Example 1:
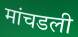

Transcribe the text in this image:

मांचडली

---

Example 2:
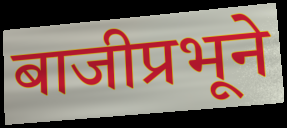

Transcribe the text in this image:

बाजीप्रभूने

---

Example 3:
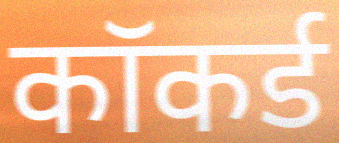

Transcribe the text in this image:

कॉकर्ड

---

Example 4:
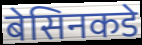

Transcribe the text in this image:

बेसिनकडे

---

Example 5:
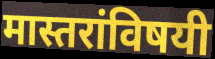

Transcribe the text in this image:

मास्तरांविषयी